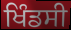
ਖਿੰਡਸੀ